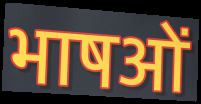
भाषओं